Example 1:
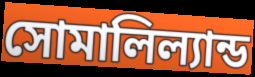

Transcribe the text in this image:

সোমালিল্যান্ড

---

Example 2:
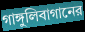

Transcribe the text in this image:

গাঙ্গুলিবাগানের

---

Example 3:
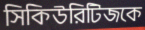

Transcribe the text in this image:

সিকিউরিটিজকে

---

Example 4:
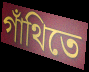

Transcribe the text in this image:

গাঁথিতে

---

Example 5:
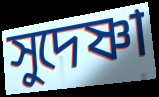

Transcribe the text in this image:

সুদেষ্ণা